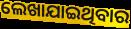
ଲେଖାଯାଇଥିବାର